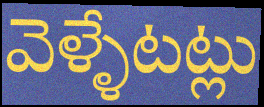
వెళ్ళేటట్లు